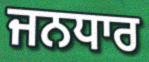
ਜਨਧਾਰ